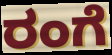
ರಂಗೆ